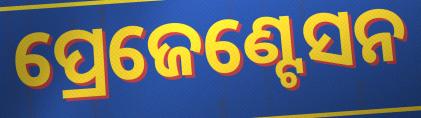
ପ୍ରେଜେଣ୍ଟେସନ